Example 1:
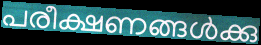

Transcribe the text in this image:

പരീക്ഷണങ്ങൾക്കു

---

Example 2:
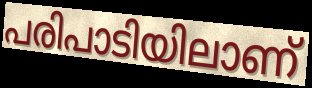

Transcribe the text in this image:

പരിപാടിയിലാണ്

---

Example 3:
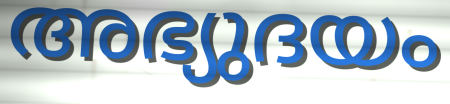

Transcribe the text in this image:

അഭ്യുദയം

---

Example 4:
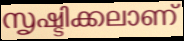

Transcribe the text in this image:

സൃഷ്ടിക്കലാണ്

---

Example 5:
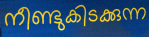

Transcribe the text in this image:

നീണ്ടുകിടക്കുന്ന